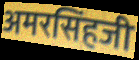
अमरसिंहजी